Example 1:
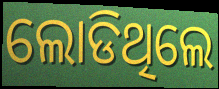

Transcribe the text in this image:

ଲୋଡିଥିଲେ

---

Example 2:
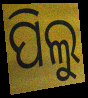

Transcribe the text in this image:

ପିଲୁ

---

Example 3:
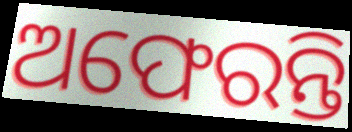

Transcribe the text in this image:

ଅଫେରନ୍ତି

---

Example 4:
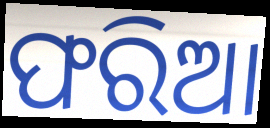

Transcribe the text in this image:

ଫରିଆ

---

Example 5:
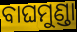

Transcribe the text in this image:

ବାଘମୁଣ୍ଡା